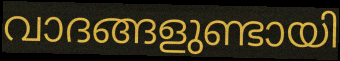
വാദങ്ങളുണ്ടായി